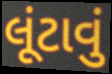
લૂંટાવું